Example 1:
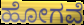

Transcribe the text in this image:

ಹೋಗವೆ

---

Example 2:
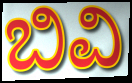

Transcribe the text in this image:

ಬಿವಿ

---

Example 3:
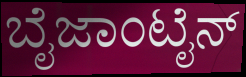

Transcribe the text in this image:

ಬೈಜಾಂಟೈನ್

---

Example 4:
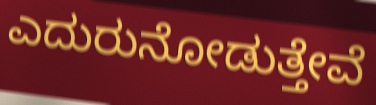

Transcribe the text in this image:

ಎದುರುನೋಡುತ್ತೇವೆ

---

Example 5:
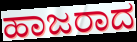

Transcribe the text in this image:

ಹಾಜರಾದ